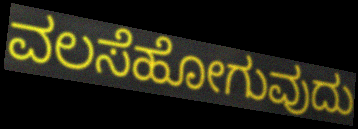
ವಲಸೆಹೋಗುವುದು